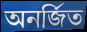
অনর্জিত